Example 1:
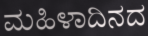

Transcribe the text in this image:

ಮಹಿಳಾದಿನದ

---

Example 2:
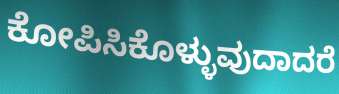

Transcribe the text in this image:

ಕೋಪಿಸಿಕೊಳ್ಳುವುದಾದರೆ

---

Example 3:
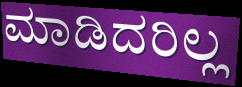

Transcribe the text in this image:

ಮಾಡಿದರಿಲ್ಲ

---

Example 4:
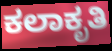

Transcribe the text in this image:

ಕಲಾಕೃತಿ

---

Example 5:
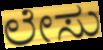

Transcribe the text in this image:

ಲೇಸು